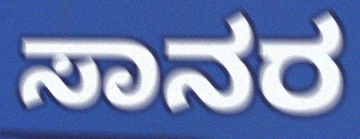
ಸಾನರ